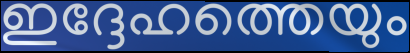
ഇദ്ദേഹത്തെയും